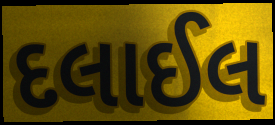
દલાઈલ